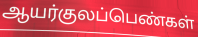
ஆயர்குலப்பெண்கள்